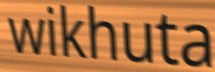
wikhuta